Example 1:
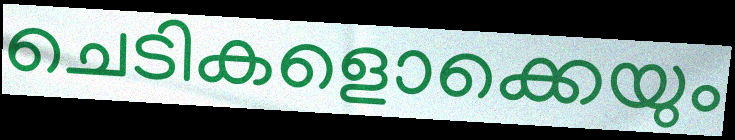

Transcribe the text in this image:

ചെടികളൊക്കെയും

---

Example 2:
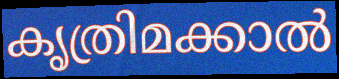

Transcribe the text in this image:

കൃത്രിമക്കാൽ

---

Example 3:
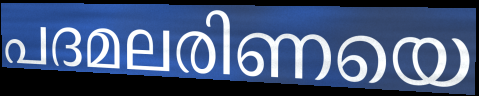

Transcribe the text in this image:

പദമലരിണയെ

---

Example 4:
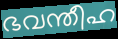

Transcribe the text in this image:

ഭവന്തീഹ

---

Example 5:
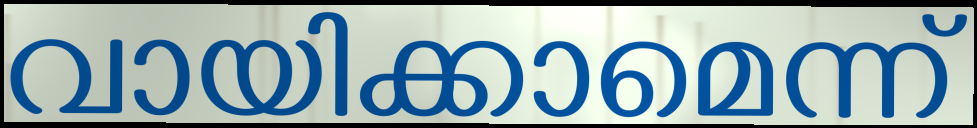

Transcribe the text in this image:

വായിക്കാമെന്ന്